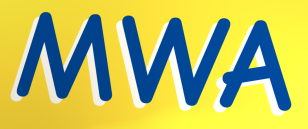
MWA